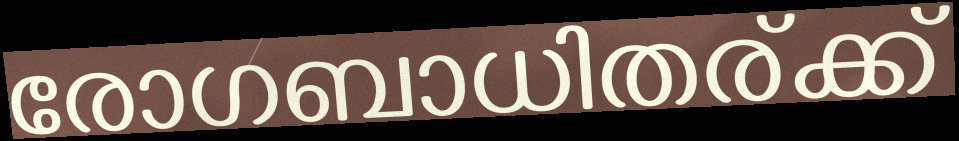
രോഗബാധിതര്ക്ക്